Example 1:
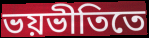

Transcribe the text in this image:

ভয়ভীতিতে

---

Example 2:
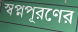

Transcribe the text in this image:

স্বপ্নপূরণের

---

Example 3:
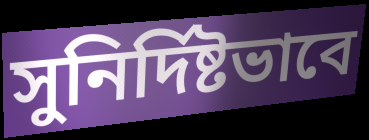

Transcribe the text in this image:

সুনির্দিষ্টভাবে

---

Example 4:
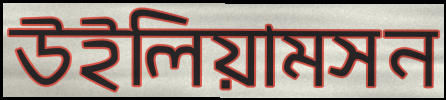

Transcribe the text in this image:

উইলিয়ামসন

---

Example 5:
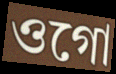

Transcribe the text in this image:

ওগো